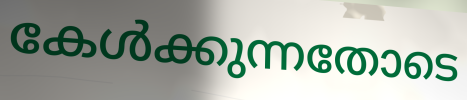
കേൾക്കുന്നതോടെ